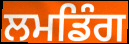
ਲਮਡਿੰਗ